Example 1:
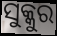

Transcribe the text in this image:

ସୁକ୍କୁର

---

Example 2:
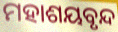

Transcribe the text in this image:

ମହାଶୟବୃନ୍ଦ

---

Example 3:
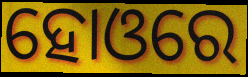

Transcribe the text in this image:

ହୋଓରେ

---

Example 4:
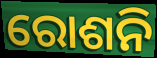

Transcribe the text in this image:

ରୋଶନି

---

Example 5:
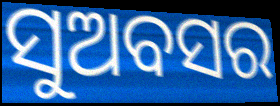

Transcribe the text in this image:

ସୁଅବସର